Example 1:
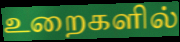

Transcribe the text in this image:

உறைகளில்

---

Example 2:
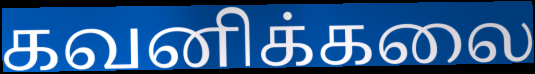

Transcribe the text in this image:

கவனிக்கலை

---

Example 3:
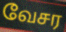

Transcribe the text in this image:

வேசர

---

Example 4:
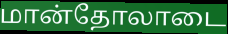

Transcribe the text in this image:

மான்தோலாடை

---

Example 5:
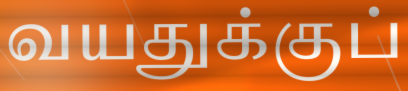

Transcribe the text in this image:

வயதுக்குப்